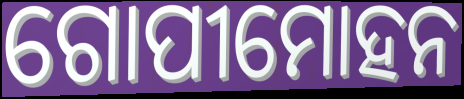
ଗୋପୀମୋହନ